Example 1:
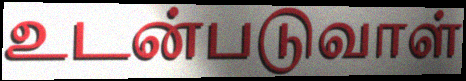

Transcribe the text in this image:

உடன்படுவாள்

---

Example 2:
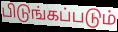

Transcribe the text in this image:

பிடுங்கப்படும்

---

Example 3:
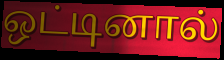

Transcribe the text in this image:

ஒட்டினால்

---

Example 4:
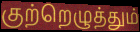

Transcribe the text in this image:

குற்றெழுத்தும்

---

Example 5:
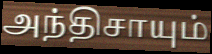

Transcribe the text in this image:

அந்திசாயும்